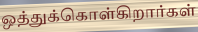
ஒத்துக்கொள்கிறார்கள்